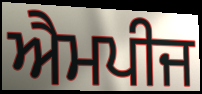
ਐਮਪੀਜ